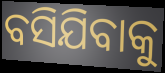
ବସିଯିବାକୁ